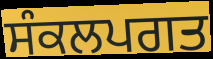
ਸੰਕਲਪਗਤ